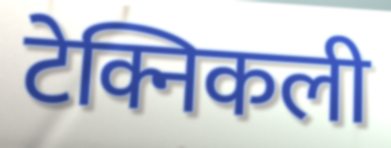
टेक्निकली